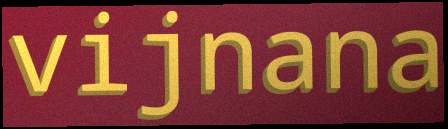
vijnana